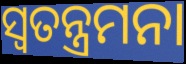
ସ୍ୱତନ୍ତ୍ରମନା